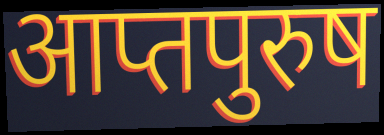
आप्तपुरुष